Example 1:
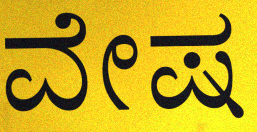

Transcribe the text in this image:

ವೇಷ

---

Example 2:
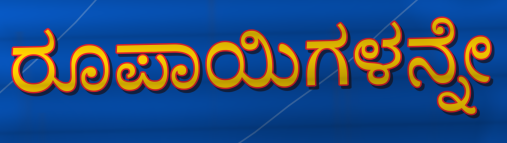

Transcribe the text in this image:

ರೂಪಾಯಿಗಳನ್ನೇ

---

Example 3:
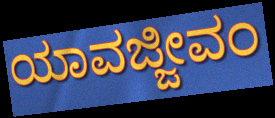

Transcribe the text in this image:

ಯಾವಜ್ಜೀವಂ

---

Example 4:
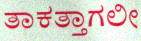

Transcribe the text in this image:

ತಾಕತ್ತಾಗಲೀ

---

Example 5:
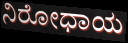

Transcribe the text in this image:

ನಿರೋಧಾಯ